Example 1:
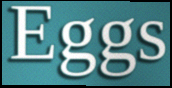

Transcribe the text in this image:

Eggs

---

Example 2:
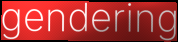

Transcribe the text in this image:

gendering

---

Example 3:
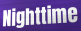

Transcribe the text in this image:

Nighttime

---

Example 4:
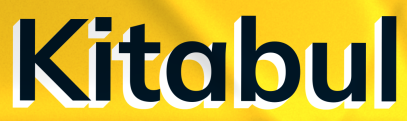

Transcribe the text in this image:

Kitabul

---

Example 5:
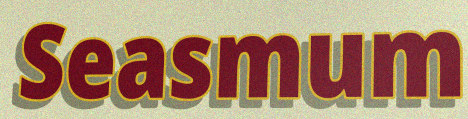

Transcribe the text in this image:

Seasmum